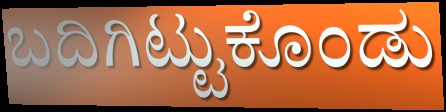
ಬದಿಗಿಟ್ಟುಕೊಂಡು